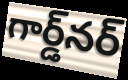
గార్డ్‌నర్